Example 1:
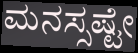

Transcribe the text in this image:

ಮನಸ್ಸಷ್ಟೇ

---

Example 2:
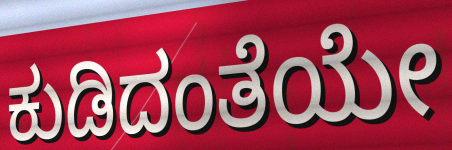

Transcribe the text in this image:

ಕುಡಿದಂತೆಯೇ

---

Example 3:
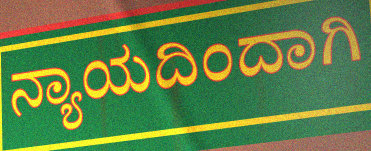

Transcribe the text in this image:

ನ್ಯಾಯದಿಂದಾಗಿ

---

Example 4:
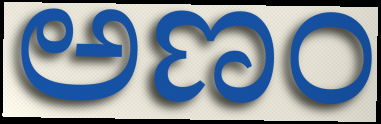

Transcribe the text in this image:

ಅಣಂ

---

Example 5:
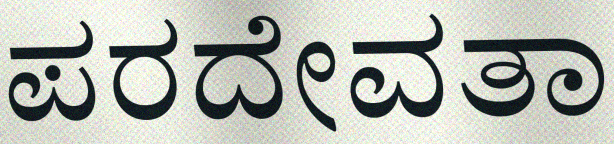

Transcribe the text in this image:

ಪರದೇವತಾ